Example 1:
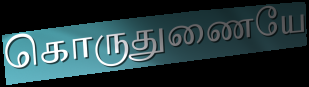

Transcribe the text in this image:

கொருதுணையே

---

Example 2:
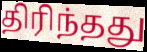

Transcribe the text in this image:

திரிந்தது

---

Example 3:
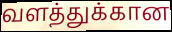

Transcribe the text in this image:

வளத்துக்கான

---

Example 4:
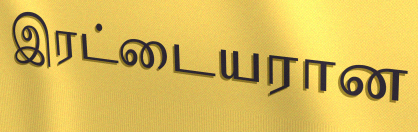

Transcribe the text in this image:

இரட்டையரான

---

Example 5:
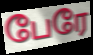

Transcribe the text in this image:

பேரே